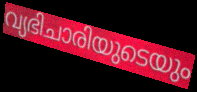
വ്യഭിചാരിയുടെയും